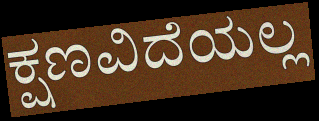
ಕ್ಷಣವಿದೆಯಲ್ಲ